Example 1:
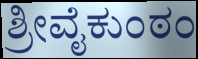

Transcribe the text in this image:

ಶ್ರೀವೈಕುಂಠಂ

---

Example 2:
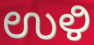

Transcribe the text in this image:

ಉಳಿ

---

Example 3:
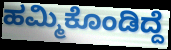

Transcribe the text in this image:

ಹಮ್ಮಿಕೊಂಡಿದ್ದೆ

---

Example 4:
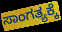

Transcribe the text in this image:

ಸಾಂಗತ್ಯಕ್ಕೆ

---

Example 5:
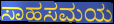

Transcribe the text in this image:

ಸಾಹಸಮಯ